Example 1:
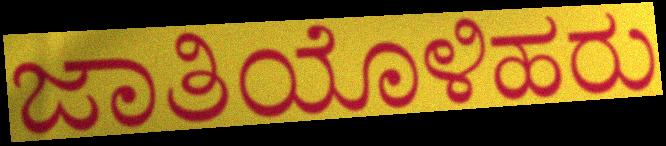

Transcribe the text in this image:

ಜಾತಿಯೊಳಿಹರು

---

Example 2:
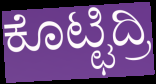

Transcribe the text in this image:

ಕೊಟ್ಟಿದ್ರಿ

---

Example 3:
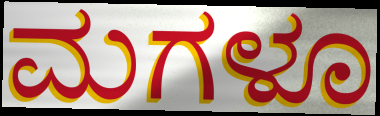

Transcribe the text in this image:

ಮಗಳೂ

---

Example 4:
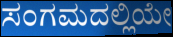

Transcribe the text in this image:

ಸಂಗಮದಲ್ಲಿಯೇ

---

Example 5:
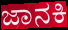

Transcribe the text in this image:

ಜಾನಕಿ